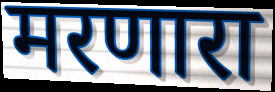
मरणारा